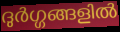
ദുർഗ്ഗങ്ങളിൽ